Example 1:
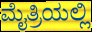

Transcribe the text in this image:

ಮೈತ್ರಿಯಲ್ಲಿ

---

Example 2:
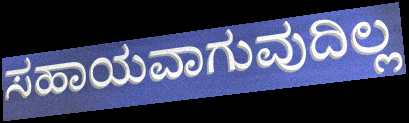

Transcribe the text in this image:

ಸಹಾಯವಾಗುವುದಿಲ್ಲ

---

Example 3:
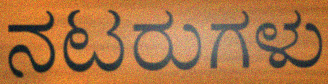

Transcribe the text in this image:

ನಟರುಗಳು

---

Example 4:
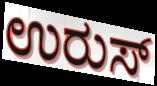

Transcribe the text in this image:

ಉರುಸ್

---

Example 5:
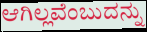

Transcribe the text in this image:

ಆಗಿಲ್ಲವೆಂಬುದನ್ನು